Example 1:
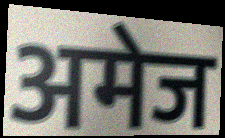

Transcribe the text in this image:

अमेज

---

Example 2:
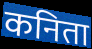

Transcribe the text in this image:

कनिता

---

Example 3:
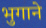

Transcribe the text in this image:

भुगाने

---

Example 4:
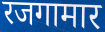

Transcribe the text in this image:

रजगामार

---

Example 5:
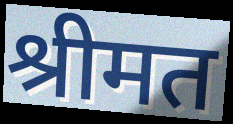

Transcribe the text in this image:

श्रीमत